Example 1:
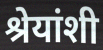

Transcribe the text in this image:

श्रेयांशी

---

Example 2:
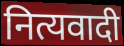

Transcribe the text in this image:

नित्यवादी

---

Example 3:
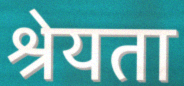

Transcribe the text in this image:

श्रेयता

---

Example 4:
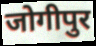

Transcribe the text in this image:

जोगीपुर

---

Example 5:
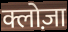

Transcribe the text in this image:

क्लोज़ा